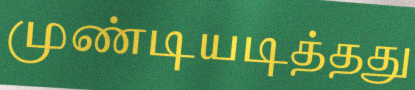
முண்டியடித்தது